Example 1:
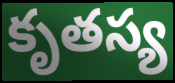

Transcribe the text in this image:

కృతస్య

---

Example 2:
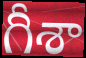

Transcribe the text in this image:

గీశా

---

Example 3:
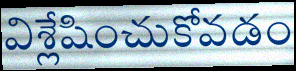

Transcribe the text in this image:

విశ్లేషించుకోవడం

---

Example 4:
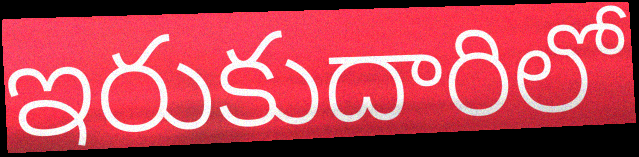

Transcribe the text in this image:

ఇరుకుదారిలో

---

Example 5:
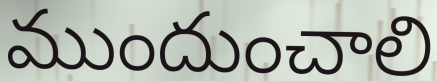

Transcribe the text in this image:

ముందుంచాలి